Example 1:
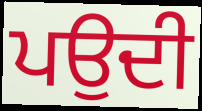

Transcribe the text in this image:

ਪਉਦੀ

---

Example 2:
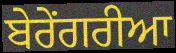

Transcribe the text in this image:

ਬੇਰੇਂਗਰੀਆ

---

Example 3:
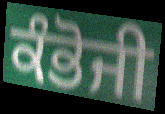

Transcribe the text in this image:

ਕੰਭੋਜੀ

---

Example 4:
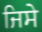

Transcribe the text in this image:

ਜਿਸੇ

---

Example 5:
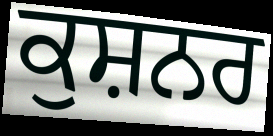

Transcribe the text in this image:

ਕੁਸ਼ਨਰ